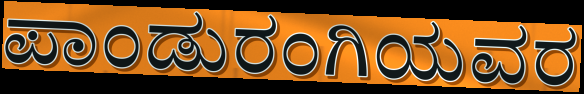
ಪಾಂಡುರಂಗಿಯವರ